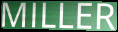
MILLER